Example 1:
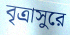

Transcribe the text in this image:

বৃত্রাসুরে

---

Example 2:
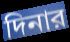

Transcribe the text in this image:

দিনার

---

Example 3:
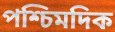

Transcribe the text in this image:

পশ্চিমদিক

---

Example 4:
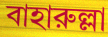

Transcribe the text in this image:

বাহারুল্লা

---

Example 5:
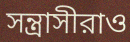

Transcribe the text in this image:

সন্ত্রাসীরাও